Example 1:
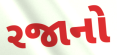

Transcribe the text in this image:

રજાનો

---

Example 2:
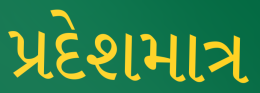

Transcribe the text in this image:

પ્રદેશમાત્ર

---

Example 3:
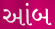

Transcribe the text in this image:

આંબ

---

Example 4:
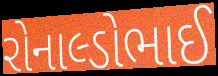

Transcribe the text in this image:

રોનાલ્ડોભાઈ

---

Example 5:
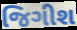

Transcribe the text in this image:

જિગીશ